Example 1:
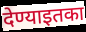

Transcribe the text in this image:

देण्याइतका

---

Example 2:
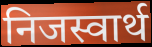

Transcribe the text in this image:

निजस्वार्थ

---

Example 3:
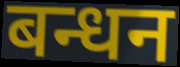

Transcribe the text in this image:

बन्धन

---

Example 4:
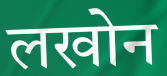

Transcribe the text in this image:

लखोन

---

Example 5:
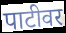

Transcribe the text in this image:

पाटीवर